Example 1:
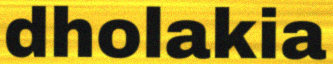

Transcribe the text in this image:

dholakia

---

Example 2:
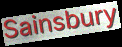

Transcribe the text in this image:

Sainsbury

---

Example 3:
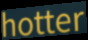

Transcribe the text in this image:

hotter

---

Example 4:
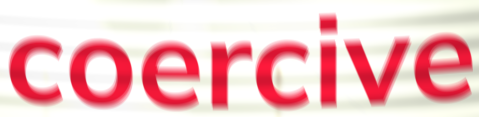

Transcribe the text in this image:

coercive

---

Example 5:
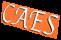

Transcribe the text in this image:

CAES